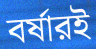
বর্ষারই